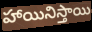
హాయినిస్తాయి